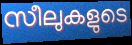
സീലുകളുടെ